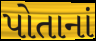
પોતાનાં